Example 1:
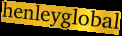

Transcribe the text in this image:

henleyglobal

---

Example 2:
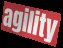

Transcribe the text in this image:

agility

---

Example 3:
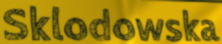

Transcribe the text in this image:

Sklodowska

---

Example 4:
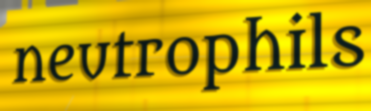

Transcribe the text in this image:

neutrophils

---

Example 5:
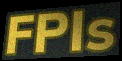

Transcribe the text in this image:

FPIs